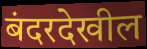
बंदरदेखील